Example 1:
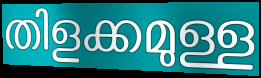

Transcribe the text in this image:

തിളക്കമുള്ള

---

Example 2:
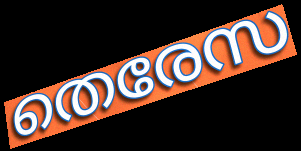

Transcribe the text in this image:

തെരേസ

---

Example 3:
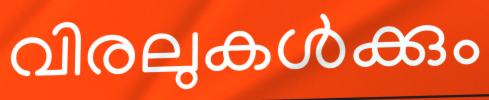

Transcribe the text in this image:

വിരലുകൾക്കും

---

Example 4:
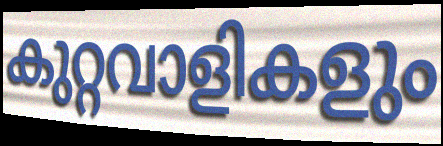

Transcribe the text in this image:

കുറ്റവാളികളും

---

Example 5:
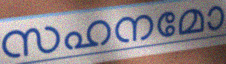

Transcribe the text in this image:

സഹനമോ